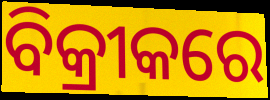
ବିକ୍ରୀକରେ